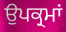
ਉਪਕ੍ਰਮਾਂ